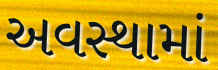
અવસ્થામાં